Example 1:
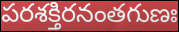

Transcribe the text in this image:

పరశక్తిరనంతగుణః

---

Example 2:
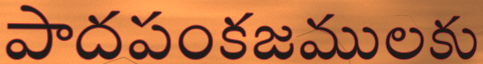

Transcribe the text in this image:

పాదపంకజములకు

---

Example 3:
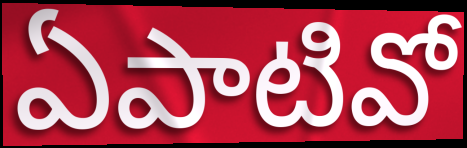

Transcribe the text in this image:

ఏపాటివో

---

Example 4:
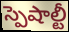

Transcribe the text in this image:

స్పెషాల్టీ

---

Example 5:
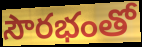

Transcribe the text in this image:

సౌరభంతో